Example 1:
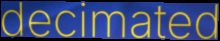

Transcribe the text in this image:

decimated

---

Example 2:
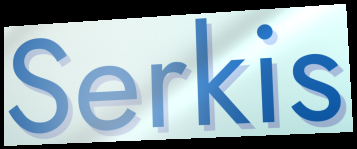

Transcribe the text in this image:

Serkis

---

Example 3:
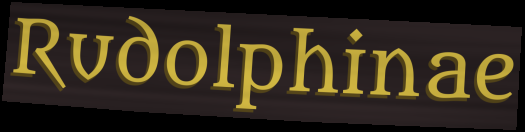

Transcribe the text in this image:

Rudolphinae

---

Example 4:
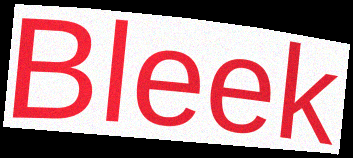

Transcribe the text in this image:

Bleek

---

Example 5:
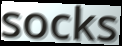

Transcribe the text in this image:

socks